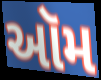
ઑમ